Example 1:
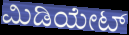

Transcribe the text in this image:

ಮಿಡಿಯೇಟ್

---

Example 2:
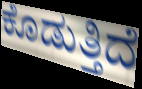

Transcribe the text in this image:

ಕೊಡುತ್ತಿದೆ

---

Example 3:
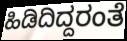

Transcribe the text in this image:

ಹಿಡಿದಿದ್ದರಂತೆ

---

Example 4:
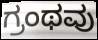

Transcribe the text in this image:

ಗ್ರಂಥವು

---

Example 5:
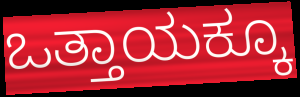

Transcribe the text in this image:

ಒತ್ತಾಯಕ್ಕೂ